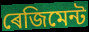
ৰেজিমেন্ট